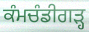
ਕੰਮਚੰਡੀਗੜ੍ਹ